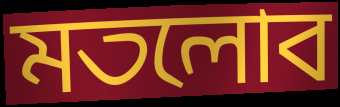
মতলোব